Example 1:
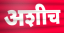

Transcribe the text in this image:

अशीच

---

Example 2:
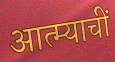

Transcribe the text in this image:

आत्म्याचीं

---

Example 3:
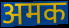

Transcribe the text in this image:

अमक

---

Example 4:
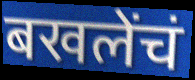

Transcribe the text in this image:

बखलेंचं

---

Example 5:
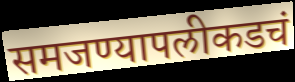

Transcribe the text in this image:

समजण्यापलीकडचं